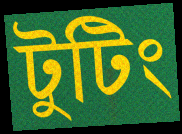
টুটিং